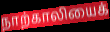
நாற்காலியைக்